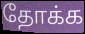
தோக்க